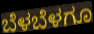
ಬೆಳಬೆಳಗೂ